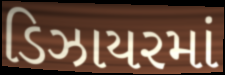
ડિઝાયરમાં